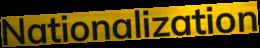
Nationalization